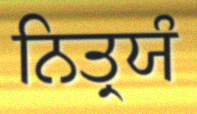
ਨਿਤ੍ਰਯੰ